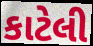
કાટેલી